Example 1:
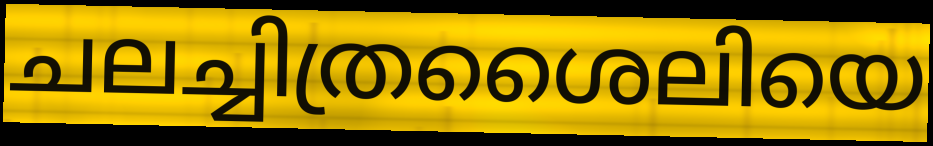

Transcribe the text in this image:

ചലച്ചിത്രശൈലിയെ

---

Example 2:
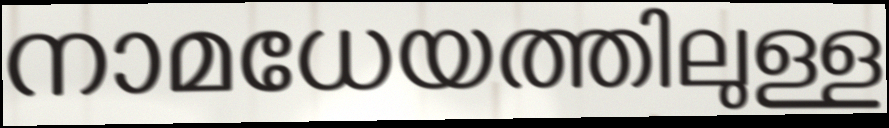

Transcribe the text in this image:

നാമധേയത്തിലുള്ള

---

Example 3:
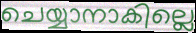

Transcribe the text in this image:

ചെയ്യാനാകില്ലെ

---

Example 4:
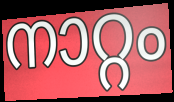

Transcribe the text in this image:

നാറ്റം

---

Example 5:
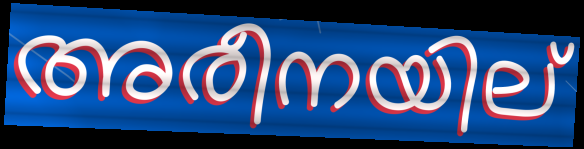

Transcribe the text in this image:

അരീനയില്